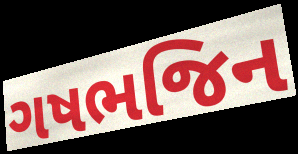
ગષભજિન